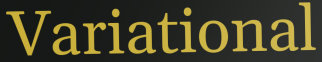
Variational